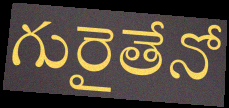
గురైతేనో